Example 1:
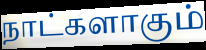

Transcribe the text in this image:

நாட்களாகும்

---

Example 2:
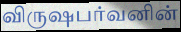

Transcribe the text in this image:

விருஷபர்வனின்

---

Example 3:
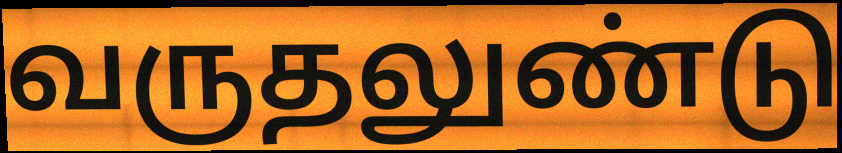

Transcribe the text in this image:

வருதலுண்டு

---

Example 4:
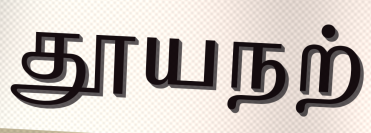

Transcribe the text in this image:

தூயநற்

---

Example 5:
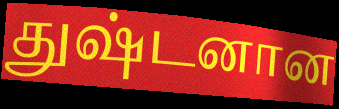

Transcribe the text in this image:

துஷ்டனான